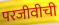
परजीवीची